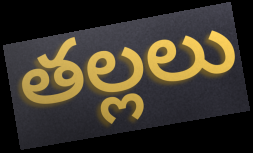
తల్లలు